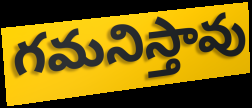
గమనిస్తావు